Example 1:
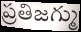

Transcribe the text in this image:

ప్రతిజగ్ము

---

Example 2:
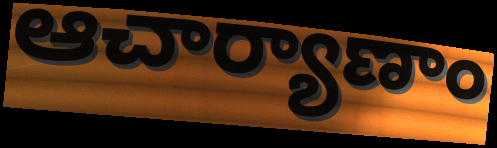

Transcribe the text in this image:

ఆచార్యాణాం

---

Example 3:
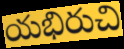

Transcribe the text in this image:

యభిరుచి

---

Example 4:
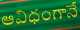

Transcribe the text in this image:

ఆవిధంగానే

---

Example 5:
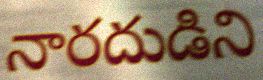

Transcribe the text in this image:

నారదుడిని